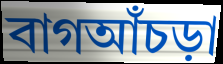
বাগআঁচড়া